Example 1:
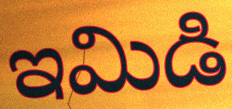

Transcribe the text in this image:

ఇమిడి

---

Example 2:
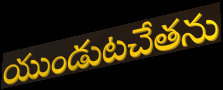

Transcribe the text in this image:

యుండుటచేతను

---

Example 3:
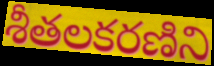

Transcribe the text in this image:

శీతలకరణిని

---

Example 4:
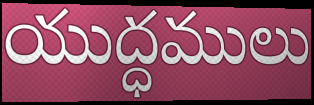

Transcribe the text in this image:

యుద్ధములు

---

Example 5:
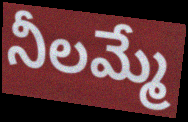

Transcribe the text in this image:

నీలమ్మే